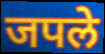
जपले